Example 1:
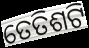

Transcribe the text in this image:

ତେତିଶଟି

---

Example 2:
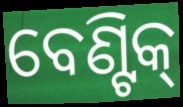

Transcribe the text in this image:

ବେଣ୍ଟିକ୍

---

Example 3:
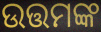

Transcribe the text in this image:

ଉତ୍ତମଙ୍କ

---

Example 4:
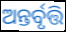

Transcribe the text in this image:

ଅନ୍ତର୍ବୃତ୍ତି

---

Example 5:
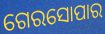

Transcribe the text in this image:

ଗେରସୋପାର